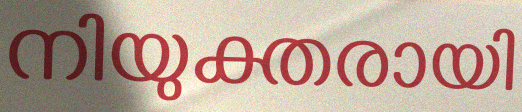
നിയുക്തരായി